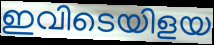
ഇവിടെയിളയ